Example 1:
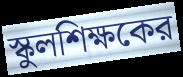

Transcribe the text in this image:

স্কুলশিক্ষকের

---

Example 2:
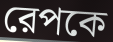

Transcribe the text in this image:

রেপকে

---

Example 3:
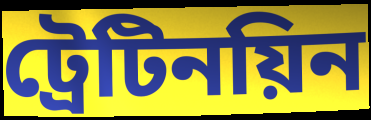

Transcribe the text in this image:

ট্রেটিনয়িন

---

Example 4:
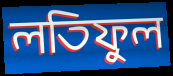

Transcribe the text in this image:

লতিফুল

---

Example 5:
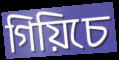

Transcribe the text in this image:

গিয়িচে